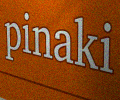
pinaki